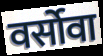
वर्सोवा